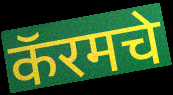
कॅरमचे